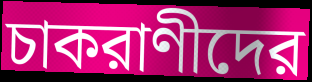
চাকরাণীদের